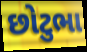
છોટુભા